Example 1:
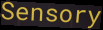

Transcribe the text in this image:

Sensory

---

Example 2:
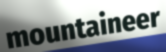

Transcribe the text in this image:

mountaineer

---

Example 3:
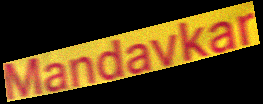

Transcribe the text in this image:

Mandavkar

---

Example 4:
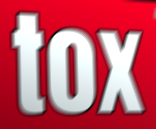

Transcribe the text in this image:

tox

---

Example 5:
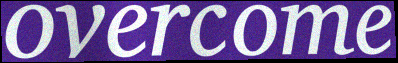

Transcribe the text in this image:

overcome